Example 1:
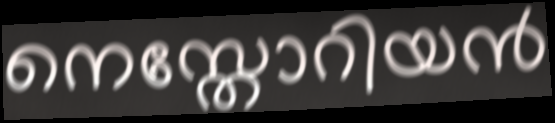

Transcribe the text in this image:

നെസ്തോറിയൻ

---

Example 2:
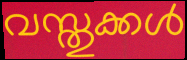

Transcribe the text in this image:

വസ്തുക്കൾ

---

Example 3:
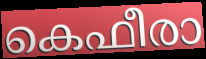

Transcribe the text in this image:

കെഫീരാ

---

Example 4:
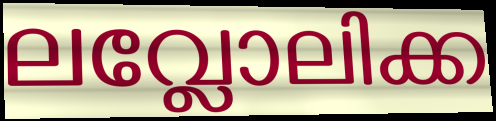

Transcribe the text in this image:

ലവ്ലോലിക്ക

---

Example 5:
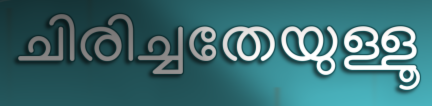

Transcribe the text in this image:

ചിരിച്ചതേയുള്ളൂ